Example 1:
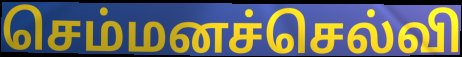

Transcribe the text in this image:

செம்மனச்செல்வி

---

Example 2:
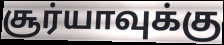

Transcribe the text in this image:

சூர்யாவுக்கு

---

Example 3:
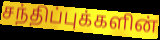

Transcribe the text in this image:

சந்திப்புக்களின்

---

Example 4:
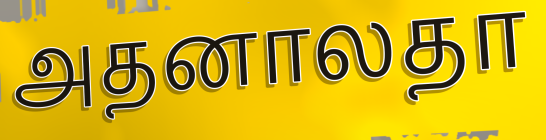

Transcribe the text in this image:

அதனாலதா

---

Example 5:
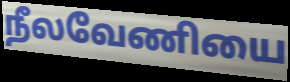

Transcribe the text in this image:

நீலவேணியை